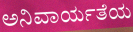
ಅನಿವಾರ್ಯತೆಯ